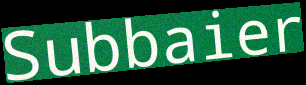
Subbaier